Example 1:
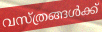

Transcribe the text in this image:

വസ്ത്രങ്ങൾക്ക്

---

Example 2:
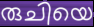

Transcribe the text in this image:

രുചിയെ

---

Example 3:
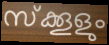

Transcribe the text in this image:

സ്ക്കൂളും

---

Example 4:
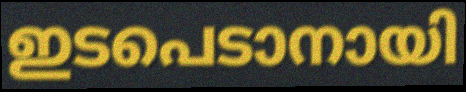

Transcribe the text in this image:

ഇടപെടാനായി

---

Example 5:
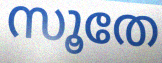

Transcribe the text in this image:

സൂതേ